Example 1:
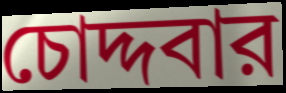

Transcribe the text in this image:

চোদ্দবার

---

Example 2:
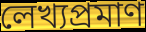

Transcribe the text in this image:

লেখ্যপ্রমাণ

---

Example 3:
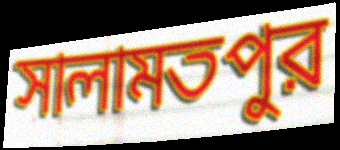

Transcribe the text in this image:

সালামতপুর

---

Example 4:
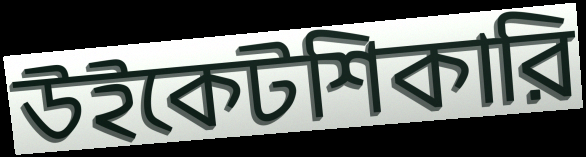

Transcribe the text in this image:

উইকেটশিকারি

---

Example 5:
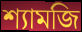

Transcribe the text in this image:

শ্যামজি